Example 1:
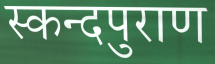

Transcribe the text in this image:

स्कन्दपुराण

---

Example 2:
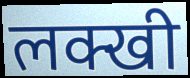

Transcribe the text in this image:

लक्खी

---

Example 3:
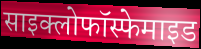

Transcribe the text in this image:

साइक्लोफॉस्फेमाइड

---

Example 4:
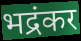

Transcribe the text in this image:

भद्रंकर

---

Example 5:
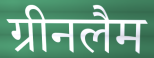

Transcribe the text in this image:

ग्रीनलैम